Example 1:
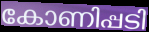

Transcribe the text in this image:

കോണിപ്പടി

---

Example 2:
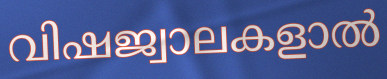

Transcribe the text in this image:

വിഷജ്വാലകളാൽ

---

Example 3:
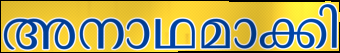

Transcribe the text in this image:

അനാഥമാക്കി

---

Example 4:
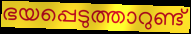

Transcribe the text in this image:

ഭയപ്പെടുത്താറുണ്ട്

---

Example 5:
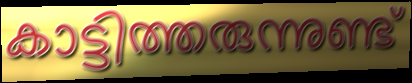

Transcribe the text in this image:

കാട്ടിത്തരുന്നുണ്ട്